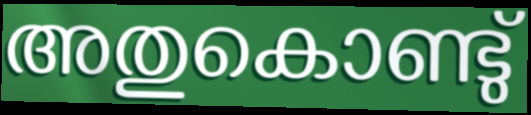
അതുകൊണ്ടു്